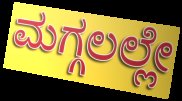
ಮಗ್ಗಲಲ್ಲೇ